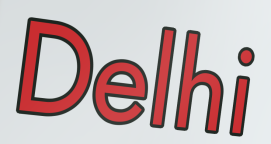
Delhi